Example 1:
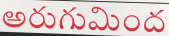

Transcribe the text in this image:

అరుగుమింద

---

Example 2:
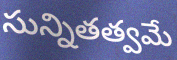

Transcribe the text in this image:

సున్నితత్వమే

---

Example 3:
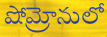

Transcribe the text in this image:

షోమ్రోనులో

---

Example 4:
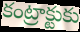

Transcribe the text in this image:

కంట్రాక్టుకు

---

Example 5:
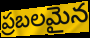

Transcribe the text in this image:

ప్రబలమైన